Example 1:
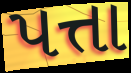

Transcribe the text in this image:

પત્તા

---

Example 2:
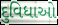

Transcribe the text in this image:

દુવિધાઓ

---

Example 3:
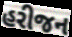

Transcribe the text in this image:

હરીજન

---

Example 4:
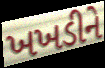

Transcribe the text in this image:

ખખડીને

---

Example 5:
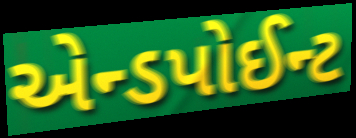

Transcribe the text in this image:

એન્ડપોઈન્ટ